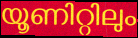
യൂണിറ്റിലും